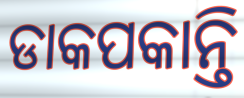
ଡାକପକାନ୍ତି